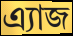
এ্যাজ